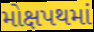
મોક્ષપથમાં